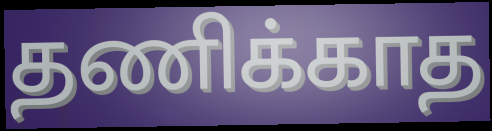
தணிக்காத